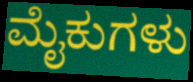
ಮೈಕುಗಳು